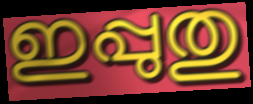
ഇപ്പുതു